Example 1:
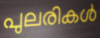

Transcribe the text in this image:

പുലരികൾ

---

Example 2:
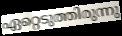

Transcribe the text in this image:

ഏറ്റെടുത്തിരുന്നു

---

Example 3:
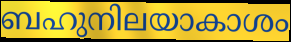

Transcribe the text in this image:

ബഹുനിലയാകാശം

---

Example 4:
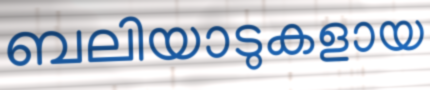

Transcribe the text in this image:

ബലിയാടുകളായ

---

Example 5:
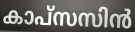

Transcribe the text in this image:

കാപ്സസിൻ